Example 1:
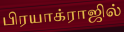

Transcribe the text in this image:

பிரயாக்ராஜில்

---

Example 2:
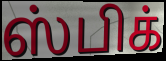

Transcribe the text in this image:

ஸ்பிக்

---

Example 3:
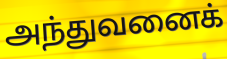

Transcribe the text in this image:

அந்துவனைக்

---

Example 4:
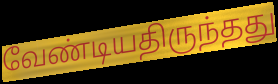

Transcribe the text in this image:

வேண்டியதிருந்தது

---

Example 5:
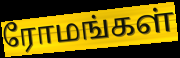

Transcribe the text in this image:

ரோமங்கள்